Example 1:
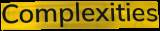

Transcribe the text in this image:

Complexities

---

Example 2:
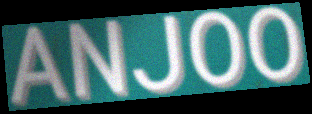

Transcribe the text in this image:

ANJOO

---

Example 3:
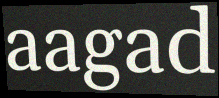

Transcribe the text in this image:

aagad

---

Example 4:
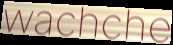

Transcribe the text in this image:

wachche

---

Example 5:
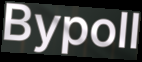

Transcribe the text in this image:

Bypoll